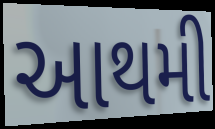
આથમી